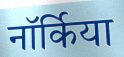
नॉर्किया